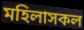
মহিলাসকল